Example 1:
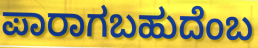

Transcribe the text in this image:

ಪಾರಾಗಬಹುದೆಂಬ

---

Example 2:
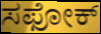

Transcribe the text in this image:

ಸಫೋಕ್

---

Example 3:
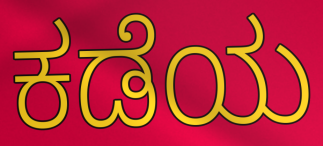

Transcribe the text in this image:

ಕಡೆಯ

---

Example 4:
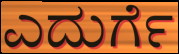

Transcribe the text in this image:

ಎದುರ್ಗೆ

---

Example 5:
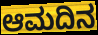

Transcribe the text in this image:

ಆಮದಿನ